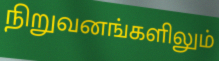
நிறுவனங்களிலும்